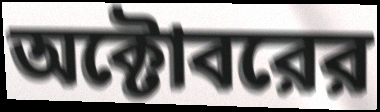
অক্টোবরের